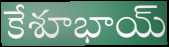
కేశూభాయ్